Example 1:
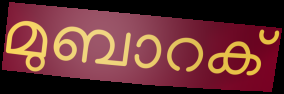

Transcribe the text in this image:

മുബാറക്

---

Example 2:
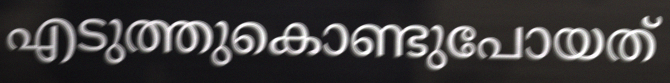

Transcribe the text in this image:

എടുത്തുകൊണ്ടുപോയത്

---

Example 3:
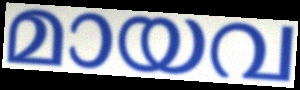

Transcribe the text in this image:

മായവ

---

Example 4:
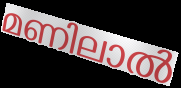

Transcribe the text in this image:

മണിലാൽ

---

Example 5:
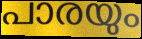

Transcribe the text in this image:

പാരയും